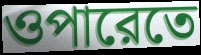
ওপারেতে